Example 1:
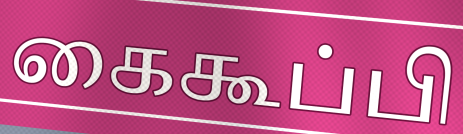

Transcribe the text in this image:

கைகூப்பி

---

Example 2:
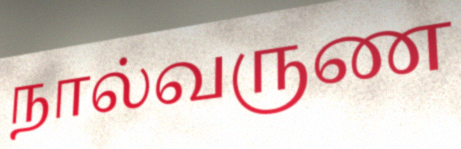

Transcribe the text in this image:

நால்வருண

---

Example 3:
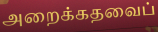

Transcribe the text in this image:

அறைக்கதவைப்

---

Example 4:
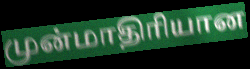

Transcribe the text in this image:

முன்மாதிரியான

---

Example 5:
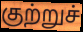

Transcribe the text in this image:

குற்றுச்